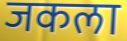
जकला